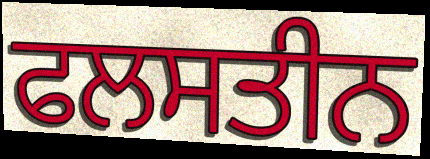
ਫਲਸਤੀਨ